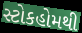
સ્ટોકહોમથી